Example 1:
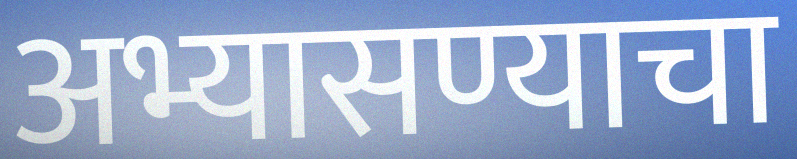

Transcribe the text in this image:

अभ्यासण्याचा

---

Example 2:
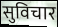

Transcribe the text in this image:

सुविचार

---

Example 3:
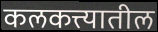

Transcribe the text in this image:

कलकत्त्यातील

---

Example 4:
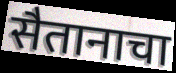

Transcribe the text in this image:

सैतानाचा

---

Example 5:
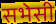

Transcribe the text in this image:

सभेसी